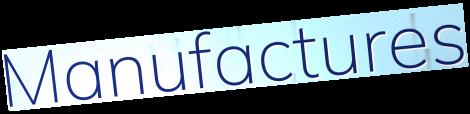
Manufactures